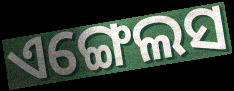
ଏଙ୍ଗେଲସ